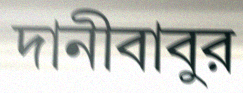
দানীবাবুর